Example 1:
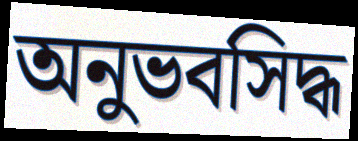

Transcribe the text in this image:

অনুভবসিদ্ধ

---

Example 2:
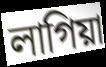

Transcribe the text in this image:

লাগিয়া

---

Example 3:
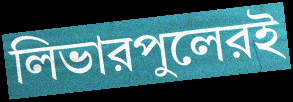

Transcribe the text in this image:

লিভারপুলেরই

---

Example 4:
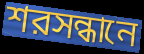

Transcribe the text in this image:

শরসন্ধানে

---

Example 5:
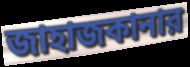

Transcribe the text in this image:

জাহাজকানার